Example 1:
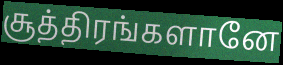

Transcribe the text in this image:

சூத்திரங்களானே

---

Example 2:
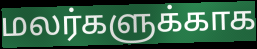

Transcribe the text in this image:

மலர்களுக்காக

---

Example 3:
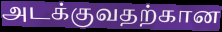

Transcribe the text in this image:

அடக்குவதற்கான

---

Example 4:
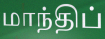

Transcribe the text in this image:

மாந்திப்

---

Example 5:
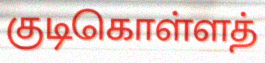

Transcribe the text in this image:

குடிகொள்ளத்